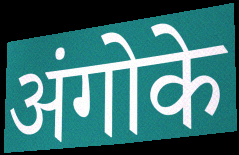
अंगोके